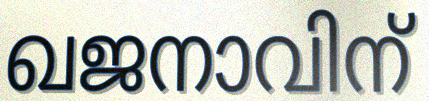
ഖജനാവിന്